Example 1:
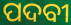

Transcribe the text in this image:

ପଦବୀ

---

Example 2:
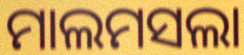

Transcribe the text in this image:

ମାଲମସଲା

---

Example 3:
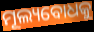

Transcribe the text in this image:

ମୂଲ୍ୟବୋଧକୁ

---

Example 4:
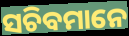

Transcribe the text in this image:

ସଚିବମାନେ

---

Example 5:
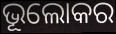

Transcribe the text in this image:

ଭୂଲୋକର